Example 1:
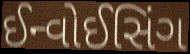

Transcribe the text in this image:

ઈન્વોઈસિંગ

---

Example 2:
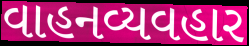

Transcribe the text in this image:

વાહનવ્યવહાર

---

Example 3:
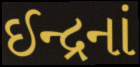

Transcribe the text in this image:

ઈન્દ્રનાં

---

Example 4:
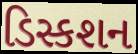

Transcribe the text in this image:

ડિસ્કશન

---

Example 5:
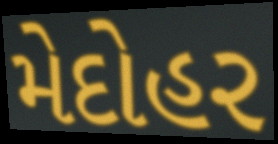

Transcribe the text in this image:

મેદોહર